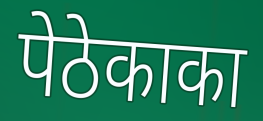
पेठेकाका